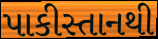
પાકીસ્તાનથી